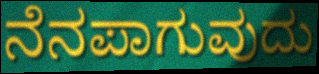
ನೆನಪಾಗುವುದು